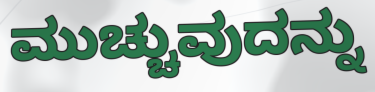
ಮುಚ್ಚುವುದನ್ನು